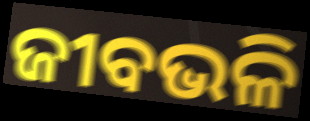
ଜୀବଭଳି